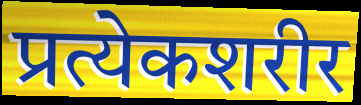
प्रत्येकशरीर